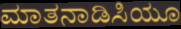
ಮಾತನಾಡಿಸಿಯೂ